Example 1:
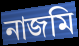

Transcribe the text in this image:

নাজমি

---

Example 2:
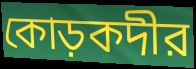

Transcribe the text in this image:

কোড়কদীর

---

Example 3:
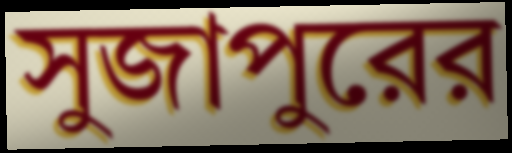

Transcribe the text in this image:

সুজাপুরের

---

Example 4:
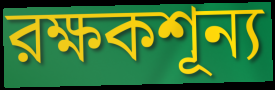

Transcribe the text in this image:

রক্ষকশূন্য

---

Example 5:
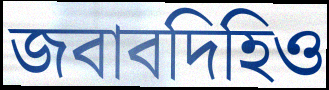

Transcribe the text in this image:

জবাবদিহিও